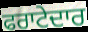
ਫਰਾਟੇਦਾਰ